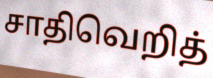
சாதிவெறித்